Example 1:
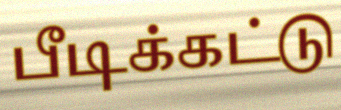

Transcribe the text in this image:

பீடிக்கட்டு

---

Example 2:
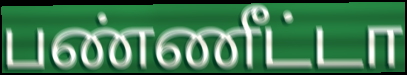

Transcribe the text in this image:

பண்ணீட்டா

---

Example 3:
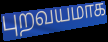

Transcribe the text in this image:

புறவயமாக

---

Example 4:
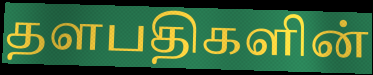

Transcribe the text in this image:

தளபதிகளின்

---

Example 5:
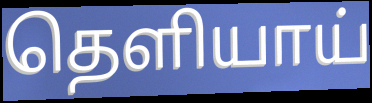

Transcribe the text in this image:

தெளியாய்